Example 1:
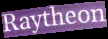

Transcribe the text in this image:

Raytheon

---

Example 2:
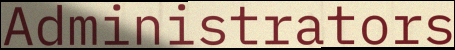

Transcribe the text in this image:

Administrators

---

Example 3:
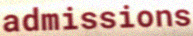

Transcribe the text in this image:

admissions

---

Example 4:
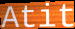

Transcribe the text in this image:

Atit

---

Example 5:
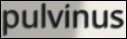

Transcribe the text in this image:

pulvinus